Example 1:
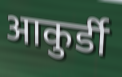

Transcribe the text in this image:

आकुर्डी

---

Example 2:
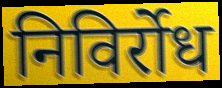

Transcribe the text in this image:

निविर्रोध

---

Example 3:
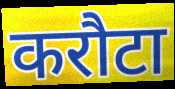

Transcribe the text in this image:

करौटा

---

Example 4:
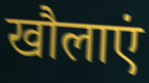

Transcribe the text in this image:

खौलाएं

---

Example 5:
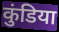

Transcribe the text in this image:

कुंडिया